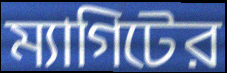
ম্যাগিটের